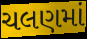
ચલણમાં